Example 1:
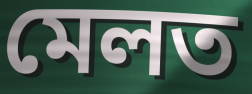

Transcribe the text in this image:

মেলত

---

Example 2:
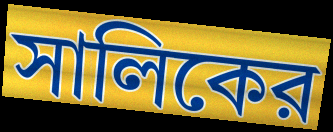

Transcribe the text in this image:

সালিকের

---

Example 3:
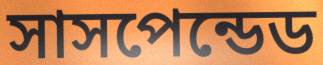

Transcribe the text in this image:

সাসপেন্ডেড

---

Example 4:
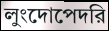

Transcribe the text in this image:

লুংদোপেদরি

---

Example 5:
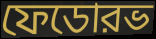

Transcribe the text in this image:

ফেডোরভ